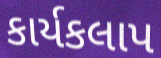
કાર્યકલાપ